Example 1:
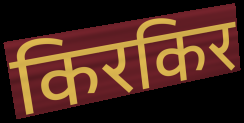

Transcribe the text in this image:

किरकिर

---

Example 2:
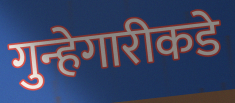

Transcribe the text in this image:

गुन्हेगारीकडे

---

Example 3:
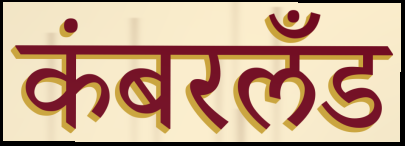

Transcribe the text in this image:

कंबरलँड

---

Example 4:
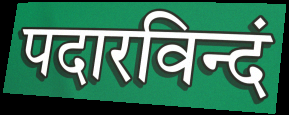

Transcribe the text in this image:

पदारविन्दं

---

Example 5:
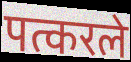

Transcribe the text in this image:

पत्करले